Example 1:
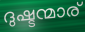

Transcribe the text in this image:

ദുഷ്ടന്മാര്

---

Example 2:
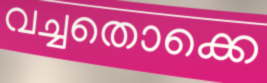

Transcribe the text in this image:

വച്ചതൊക്കെ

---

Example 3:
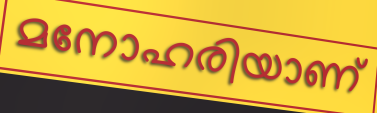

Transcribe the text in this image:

മനോഹരിയാണ്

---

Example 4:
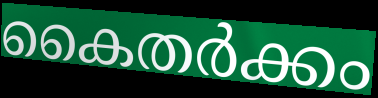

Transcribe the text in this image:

കൈതർക്കം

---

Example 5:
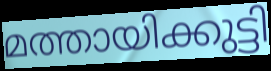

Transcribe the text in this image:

മത്തായിക്കുട്ടി